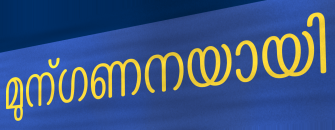
മുന്ഗണനയായി